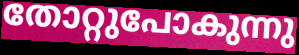
തോറ്റുപോകുന്നു